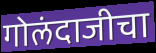
गोलंदाजीचा